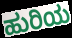
ಹುರಿಯ